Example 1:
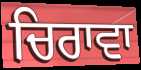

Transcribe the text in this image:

ਚਿਰਾਵਾ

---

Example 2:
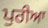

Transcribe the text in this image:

ਪੁਰੀਆ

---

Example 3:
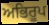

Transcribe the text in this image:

ਅਭਿਰੂਪ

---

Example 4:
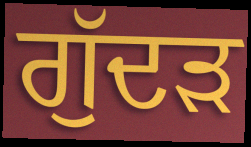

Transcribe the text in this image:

ਗੁੱਦੜ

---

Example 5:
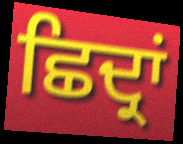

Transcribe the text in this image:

ਛਿਦ੍ਰਾਂ